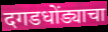
दगडधोंड्याचा